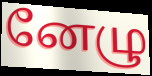
னேழு